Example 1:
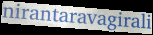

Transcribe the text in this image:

nirantaravagirali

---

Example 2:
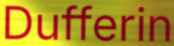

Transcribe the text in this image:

Dufferin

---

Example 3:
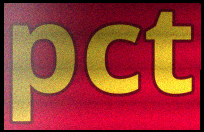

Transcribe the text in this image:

pct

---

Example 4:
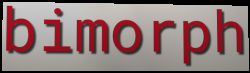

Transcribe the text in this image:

bimorph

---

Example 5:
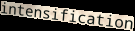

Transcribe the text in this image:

intensification